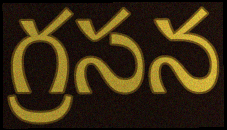
గ్రసన